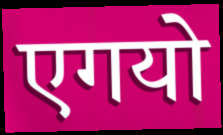
एगयो